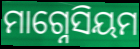
ମାଗ୍ନେସିୟମ